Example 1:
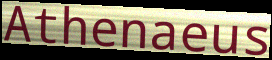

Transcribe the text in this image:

Athenaeus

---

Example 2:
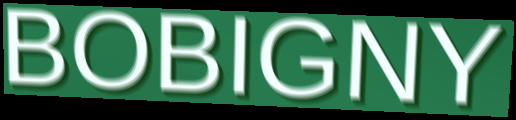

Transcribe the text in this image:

BOBIGNY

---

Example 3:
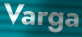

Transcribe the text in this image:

Varga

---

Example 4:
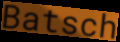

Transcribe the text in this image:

Batsch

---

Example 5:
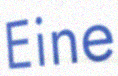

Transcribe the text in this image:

Eine